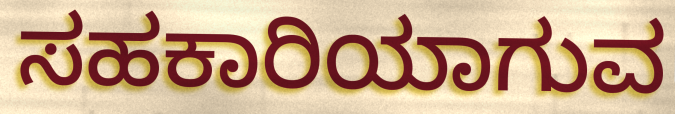
ಸಹಕಾರಿಯಾಗುವ